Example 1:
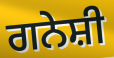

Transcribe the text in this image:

ਗਨੇਸ਼ੀ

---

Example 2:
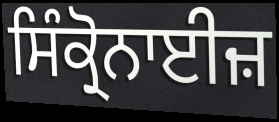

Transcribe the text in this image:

ਸਿੰਕ੍ਰੋਨਾਈਜ਼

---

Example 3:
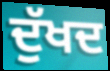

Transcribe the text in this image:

ਦੁੱਖਦ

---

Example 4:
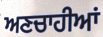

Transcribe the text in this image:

ਅਣਚਾਹੀਆਂ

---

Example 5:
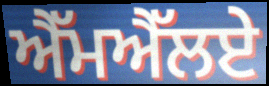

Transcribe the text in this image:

ਐੱਮਐੱਲਏ